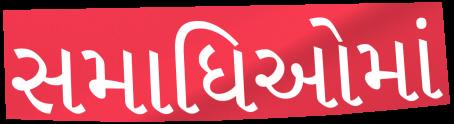
સમાધિઓમાં